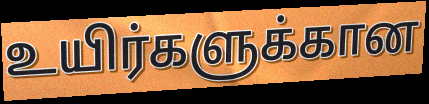
உயிர்களுக்கான